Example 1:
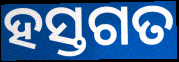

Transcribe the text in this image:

ହସ୍ତଗତ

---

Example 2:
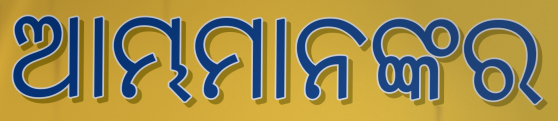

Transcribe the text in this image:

ଆମ୍ଭମାନଙ୍କର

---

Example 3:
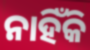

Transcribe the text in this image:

ନାହିଁକି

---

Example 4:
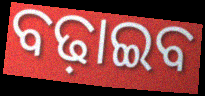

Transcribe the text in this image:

ବଢ଼ାଇବ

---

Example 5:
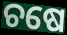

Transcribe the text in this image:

ଚଷେ